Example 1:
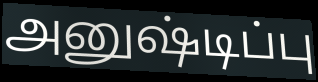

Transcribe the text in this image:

அனுஷ்டிப்பு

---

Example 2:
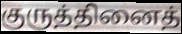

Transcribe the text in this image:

குருத்தினைத்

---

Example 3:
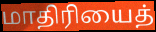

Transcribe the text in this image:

மாதிரியைத்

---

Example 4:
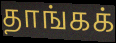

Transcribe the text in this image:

தாங்கக்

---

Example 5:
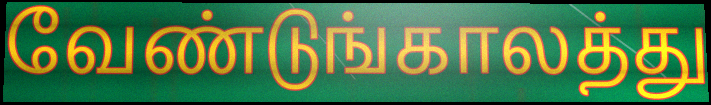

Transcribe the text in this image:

வேண்டுங்காலத்து